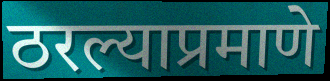
ठरल्याप्रमाणे